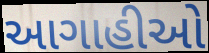
આગાહીઓ